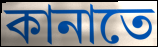
কানাতে